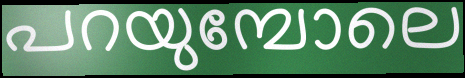
പറയുമ്പോലെ